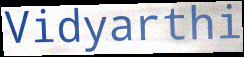
Vidyarthi